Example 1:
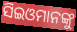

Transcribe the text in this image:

ସିଇଓମାନଙ୍କୁ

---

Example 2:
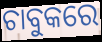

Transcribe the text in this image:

ଚାବୁକରେ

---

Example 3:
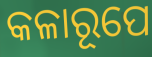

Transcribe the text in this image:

କଳାରୂପେ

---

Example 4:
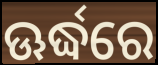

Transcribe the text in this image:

ଊର୍ଦ୍ଧରେ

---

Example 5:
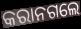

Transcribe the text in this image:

କରାନଗଲେ